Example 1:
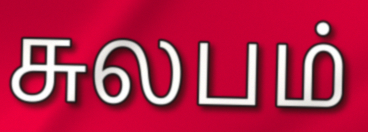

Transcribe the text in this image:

சுலபம்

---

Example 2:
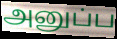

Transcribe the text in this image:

அனுப்ப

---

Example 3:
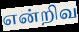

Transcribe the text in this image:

என்றிவ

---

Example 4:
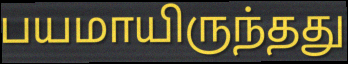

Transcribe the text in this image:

பயமாயிருந்தது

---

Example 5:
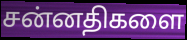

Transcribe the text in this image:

சன்னதிகளை